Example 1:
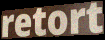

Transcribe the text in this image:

retort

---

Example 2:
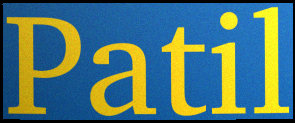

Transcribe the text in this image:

Patil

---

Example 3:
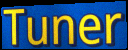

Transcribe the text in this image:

Tuner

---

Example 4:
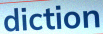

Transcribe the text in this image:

diction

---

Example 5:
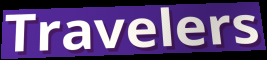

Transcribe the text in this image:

Travelers